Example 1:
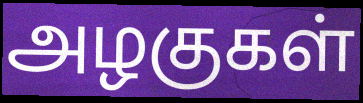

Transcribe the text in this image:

அழகுகள்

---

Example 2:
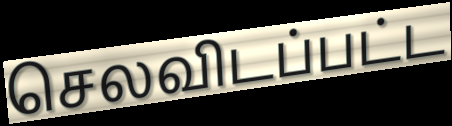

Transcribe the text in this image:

செலவிடப்பட்ட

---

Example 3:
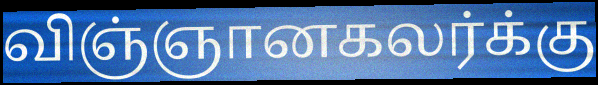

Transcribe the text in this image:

விஞ்ஞானகலர்க்கு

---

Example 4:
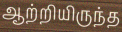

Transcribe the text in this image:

ஆற்றியிருந்த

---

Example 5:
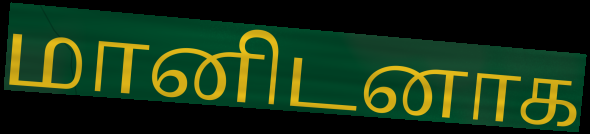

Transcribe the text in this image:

மானிடனாக